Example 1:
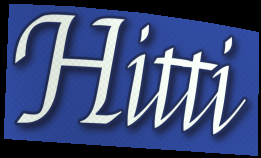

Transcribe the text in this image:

Hitti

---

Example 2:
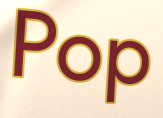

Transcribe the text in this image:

Pop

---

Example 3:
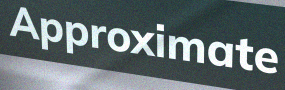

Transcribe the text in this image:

Approximate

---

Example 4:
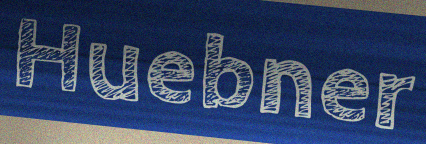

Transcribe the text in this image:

Huebner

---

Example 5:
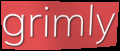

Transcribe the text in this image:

grimly